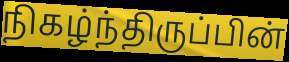
நிகழ்ந்திருப்பின்